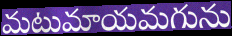
మటుమాయమగును